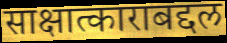
साक्षात्काराबद्दल